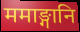
ममाङ्गानि